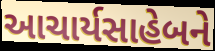
આચાર્યસાહેબને